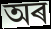
অৰ